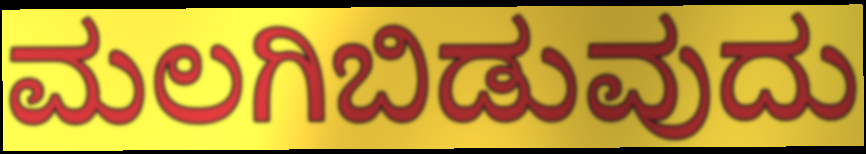
ಮಲಗಿಬಿಡುವುದು